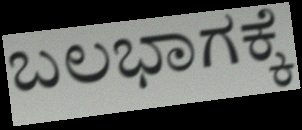
ಬಲಭಾಗಕ್ಕೆ